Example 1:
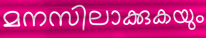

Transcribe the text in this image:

മനസിലാക്കുകയും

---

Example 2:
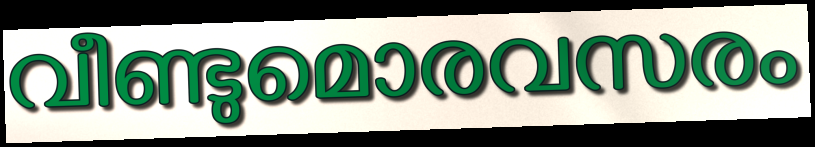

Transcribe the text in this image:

വീണ്ടുമൊരവസരം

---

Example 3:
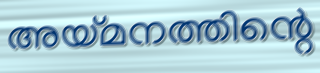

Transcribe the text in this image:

അയ്മനത്തിന്റെ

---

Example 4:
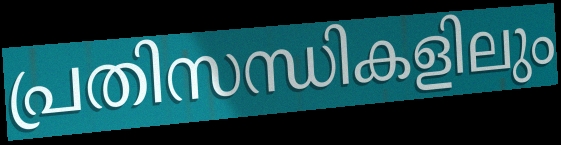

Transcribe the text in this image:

പ്രതിസന്ധികളിലും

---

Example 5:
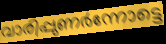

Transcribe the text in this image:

വാരിപ്പുണർന്നോട്ടെ